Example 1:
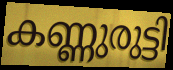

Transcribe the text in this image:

കണ്ണുരുട്ടി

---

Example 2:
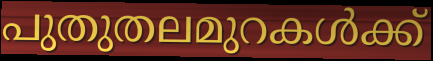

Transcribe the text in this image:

പുതുതലമുറകൾക്ക്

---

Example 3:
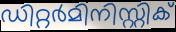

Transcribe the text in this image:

ഡിറ്റർമിനിസ്റ്റിക്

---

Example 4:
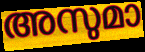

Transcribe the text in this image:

അസുമാ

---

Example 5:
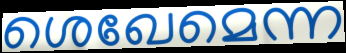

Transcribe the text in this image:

ശെഖേമെന്ന